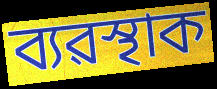
ব্যৱস্থাক